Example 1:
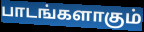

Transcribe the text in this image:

பாடங்களாகும்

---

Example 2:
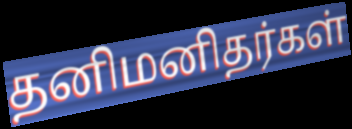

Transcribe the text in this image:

தனிமனிதர்கள்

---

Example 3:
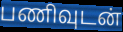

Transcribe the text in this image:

பணிவுடன்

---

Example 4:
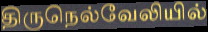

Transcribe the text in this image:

திருநெல்வேலியில்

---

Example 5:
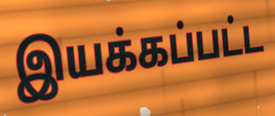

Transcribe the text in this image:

இயக்கப்பட்ட